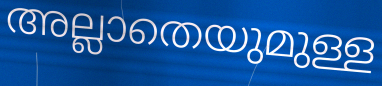
അല്ലാതെയുമുള്ള